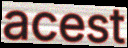
acest